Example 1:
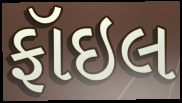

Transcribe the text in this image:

ફૉઇલ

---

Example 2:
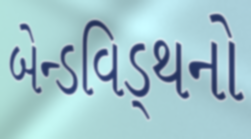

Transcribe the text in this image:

બેન્ડવિડ્થનો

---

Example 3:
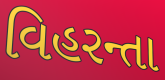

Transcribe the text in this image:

વિહરન્તા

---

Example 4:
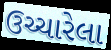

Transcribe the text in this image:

ઉચ્ચારેલા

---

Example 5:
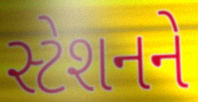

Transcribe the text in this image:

સ્ટેશનને